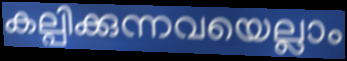
കല്പിക്കുന്നവയെല്ലാം